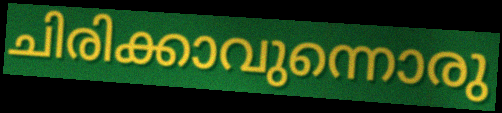
ചിരിക്കാവുന്നൊരു